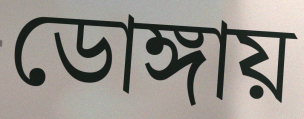
ডোঙ্গায়